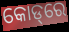
କୋଡ୍‌ରେ